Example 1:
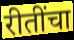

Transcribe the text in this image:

रीतींचा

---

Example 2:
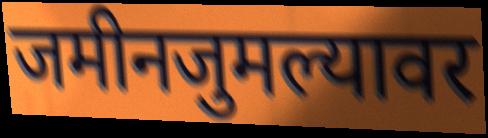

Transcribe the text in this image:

जमीनजुमल्यावर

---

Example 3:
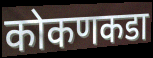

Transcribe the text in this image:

कोकणकडा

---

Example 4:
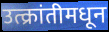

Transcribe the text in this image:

उत्क्रांतीमधून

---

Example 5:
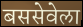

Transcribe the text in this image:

बससेवेला